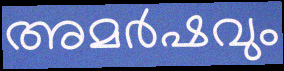
അമർഷവും